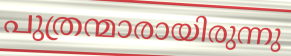
പുത്രന്മാരായിരുന്നു